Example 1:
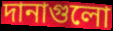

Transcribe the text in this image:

দানাগুলো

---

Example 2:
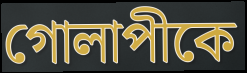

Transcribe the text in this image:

গোলাপীকে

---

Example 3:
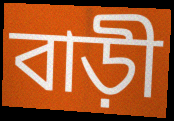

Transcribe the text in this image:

বাড়ী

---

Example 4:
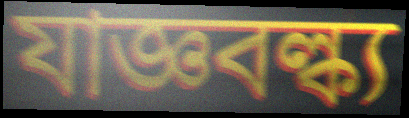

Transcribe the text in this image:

যাজ্ঞবল্ক্য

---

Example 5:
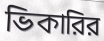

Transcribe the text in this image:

ভিকারির